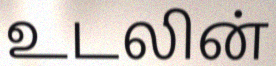
உடலின்